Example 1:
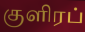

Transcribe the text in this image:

குளிரப்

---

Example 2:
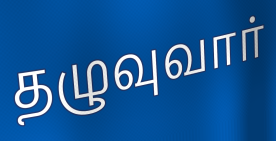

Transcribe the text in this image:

தழுவுவார்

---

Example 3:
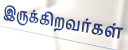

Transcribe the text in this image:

இருக்கிறவர்கள்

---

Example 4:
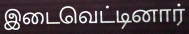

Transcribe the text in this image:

இடைவெட்டினார்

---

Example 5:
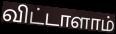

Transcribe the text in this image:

விட்டாளாம்